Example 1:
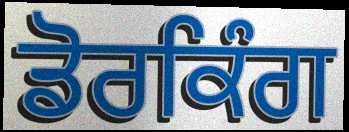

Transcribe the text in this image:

ਡੋਰਕਿੰਗ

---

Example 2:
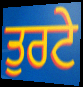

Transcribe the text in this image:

ਤੁਰਟੇ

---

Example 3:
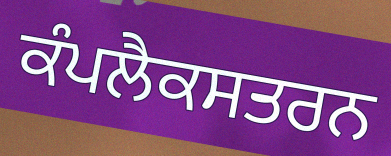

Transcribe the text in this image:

ਕੰਪਲੈਕਸਤਰਨ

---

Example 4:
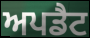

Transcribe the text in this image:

ਅਪਡੈਟ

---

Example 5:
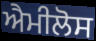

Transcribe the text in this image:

ਐਮੀਲੋਸ